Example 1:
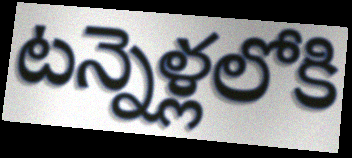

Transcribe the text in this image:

టన్నెళ్లలోకి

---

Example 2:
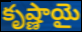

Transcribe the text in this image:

కృష్ణాయై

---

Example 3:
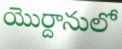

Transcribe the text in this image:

యొర్దానులో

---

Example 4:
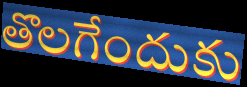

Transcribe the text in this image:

తొలగేందుకు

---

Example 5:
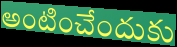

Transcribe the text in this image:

అంటించేందుకు